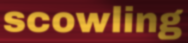
scowling